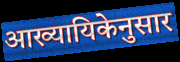
आख्यायिकेनुसार